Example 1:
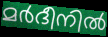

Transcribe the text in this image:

മർദീനിൽ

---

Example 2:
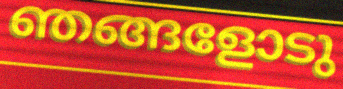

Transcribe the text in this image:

ഞങ്ങളോടു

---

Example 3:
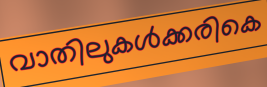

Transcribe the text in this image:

വാതിലുകൾക്കരികെ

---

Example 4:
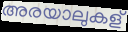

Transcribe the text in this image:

അരയാലുകള്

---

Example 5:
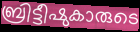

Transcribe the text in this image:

ബ്രിട്ടീഷുകാരുടെ